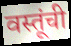
वस्तूंची